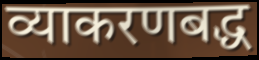
व्याकरणबद्ध